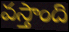
వస్తాంది